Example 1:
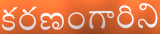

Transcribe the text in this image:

కరణంగారిని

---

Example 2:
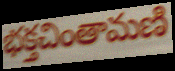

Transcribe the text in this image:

భక్తచింతామణి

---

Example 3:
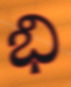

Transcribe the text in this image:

భి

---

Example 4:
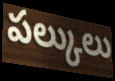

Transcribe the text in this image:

పల్కులు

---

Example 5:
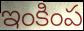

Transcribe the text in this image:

ఇంకింప